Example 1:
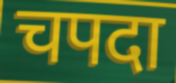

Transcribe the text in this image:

चपदा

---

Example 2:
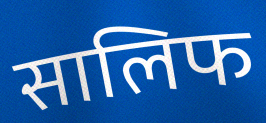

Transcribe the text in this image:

सालिफ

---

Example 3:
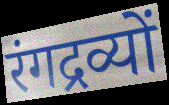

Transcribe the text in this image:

रंगद्रव्यों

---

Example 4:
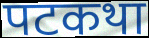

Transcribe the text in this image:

पटकथा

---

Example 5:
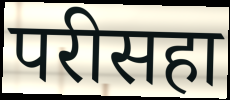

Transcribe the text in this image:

परीसहा